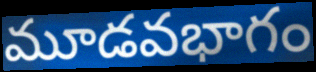
మూడవభాగం